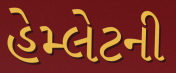
હેમ્લેટની